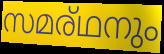
സമര്ഥനും